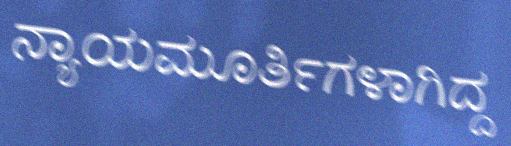
ನ್ಯಾಯಮೂರ್ತಿಗಳಾಗಿದ್ದ